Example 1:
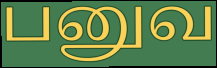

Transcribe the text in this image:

பனுவ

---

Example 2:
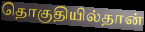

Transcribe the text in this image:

தொகுதியில்தான்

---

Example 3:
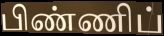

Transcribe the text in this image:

பிண்ணிப்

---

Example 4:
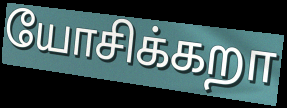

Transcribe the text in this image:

யோசிக்கறா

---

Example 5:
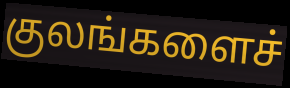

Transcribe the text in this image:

குலங்களைச்